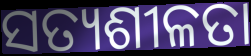
ସତ୍ୟଶୀଳତା